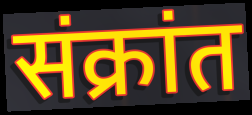
संक्रांत